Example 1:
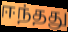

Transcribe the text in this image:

ஈந்தது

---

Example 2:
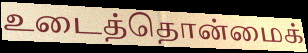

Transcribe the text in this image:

உடைத்தொன்மைக்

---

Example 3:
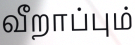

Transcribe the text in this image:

வீறாப்பும்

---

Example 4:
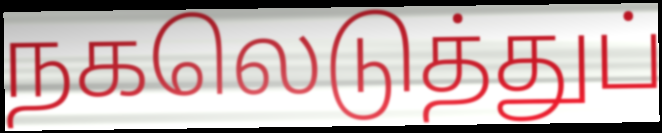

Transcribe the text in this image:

நகலெடுத்துப்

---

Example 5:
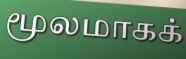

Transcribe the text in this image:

மூலமாகக்